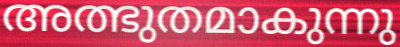
അത്ഭുതമാകുന്നു